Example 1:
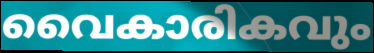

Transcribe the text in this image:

വൈകാരികവും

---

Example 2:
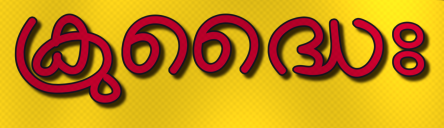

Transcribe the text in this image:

ക്രുദ്ധൈഃ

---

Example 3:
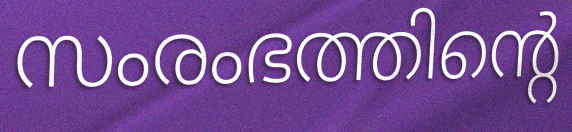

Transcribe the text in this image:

സംരംഭത്തിന്റെ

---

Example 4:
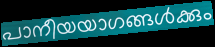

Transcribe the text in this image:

പാനീയയാഗങ്ങൾക്കും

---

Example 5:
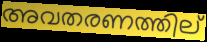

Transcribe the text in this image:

അവതരണത്തില്